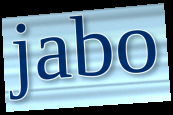
jabo